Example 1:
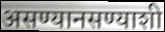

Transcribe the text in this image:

असण्यानसण्याशी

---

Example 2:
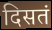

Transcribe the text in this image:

दिसतं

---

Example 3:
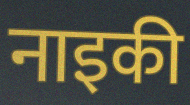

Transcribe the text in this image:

नाइकी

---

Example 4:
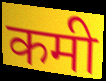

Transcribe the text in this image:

कमी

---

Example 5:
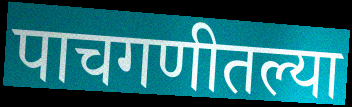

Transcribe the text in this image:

पाचगणीतल्या